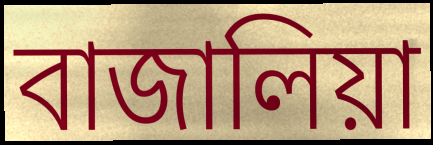
বাজালিয়া